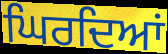
ਘਿਰਦਿਆਂ